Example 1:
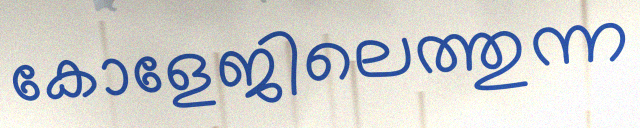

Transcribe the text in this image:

കോളേജിലെത്തുന്ന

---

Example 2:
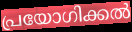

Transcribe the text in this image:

പ്രയോഗിക്കൽ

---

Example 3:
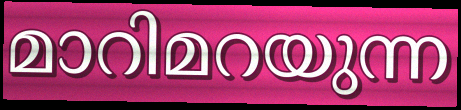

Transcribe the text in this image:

മാറിമറയുന്ന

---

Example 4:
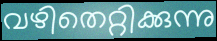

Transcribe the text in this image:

വഴിതെറ്റിക്കുന്നു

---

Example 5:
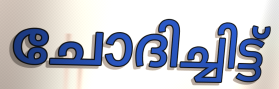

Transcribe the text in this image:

ചോദിച്ചിട്ട്